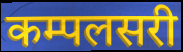
कम्पलसरी